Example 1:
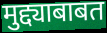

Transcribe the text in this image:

मुद्द्याबाबत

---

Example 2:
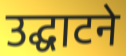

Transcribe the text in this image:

उद्घाटने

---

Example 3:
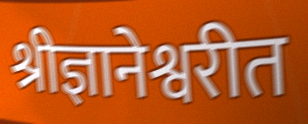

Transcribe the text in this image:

श्रीज्ञानेश्वरीत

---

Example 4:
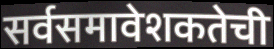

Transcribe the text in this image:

सर्वसमावेशकतेची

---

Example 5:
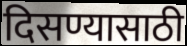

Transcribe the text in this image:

दिसण्यासाठी